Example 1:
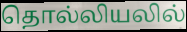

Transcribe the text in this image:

தொல்லியலில்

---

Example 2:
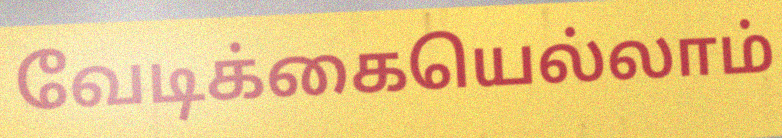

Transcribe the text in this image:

வேடிக்கையெல்லாம்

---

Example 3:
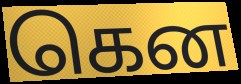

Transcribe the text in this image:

கென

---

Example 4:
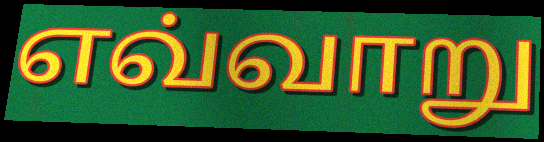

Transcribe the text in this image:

எவ்வாறு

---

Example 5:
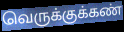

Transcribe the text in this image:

வெருக்குக்கண்